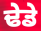
ਢੇਡੇ